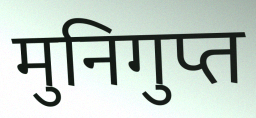
मुनिगुप्त